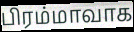
பிரம்மாவாக